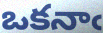
ఒకనాఁ